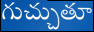
గుచ్చుతూ